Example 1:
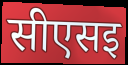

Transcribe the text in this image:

सीएसइ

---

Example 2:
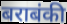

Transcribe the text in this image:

बराबंकी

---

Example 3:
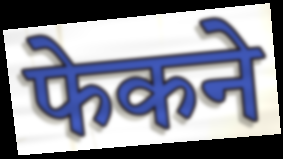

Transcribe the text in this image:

फेकने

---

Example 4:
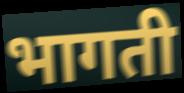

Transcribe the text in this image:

भागती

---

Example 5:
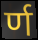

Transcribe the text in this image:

र्ण